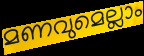
മണവുമെല്ലാം